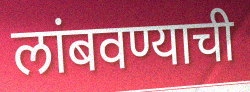
लांबवण्याची